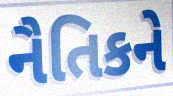
નૈતિકને